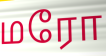
மரோ